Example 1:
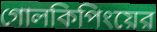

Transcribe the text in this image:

গোলকিপিংয়ের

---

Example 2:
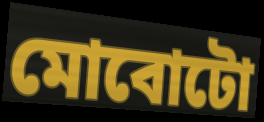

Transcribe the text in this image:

মোবোটো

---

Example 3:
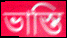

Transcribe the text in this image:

ভাস্তি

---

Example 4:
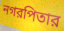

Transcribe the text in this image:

নগরপিতার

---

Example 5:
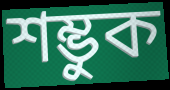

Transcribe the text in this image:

শম্ভুক